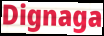
Dignaga